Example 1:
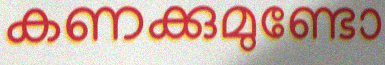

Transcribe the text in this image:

കണക്കുമുണ്ടോ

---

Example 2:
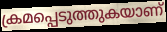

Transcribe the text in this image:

ക്രമപ്പെടുത്തുകയാണ്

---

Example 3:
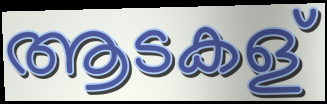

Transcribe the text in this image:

ആടകള്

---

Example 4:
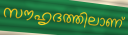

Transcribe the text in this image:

സൗഹൃദത്തിലാണ്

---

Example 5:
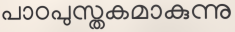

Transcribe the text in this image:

പാഠപുസ്തകമാകുന്നു